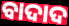
ବାଦାଦ